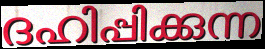
ദഹിപ്പിക്കുന്ന